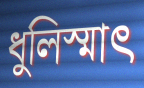
ধুলিস্মাৎ